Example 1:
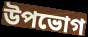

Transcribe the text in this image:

উপভোগ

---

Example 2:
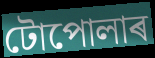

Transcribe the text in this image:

টোপোলাৰ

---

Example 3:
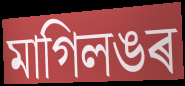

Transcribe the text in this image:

মাগিলঙৰ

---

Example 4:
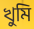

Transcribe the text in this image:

খুমি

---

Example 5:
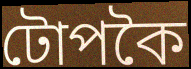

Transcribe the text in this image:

টোপকৈ